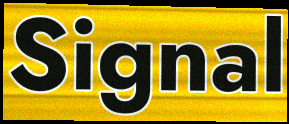
Signal